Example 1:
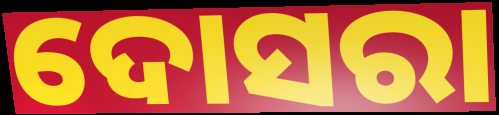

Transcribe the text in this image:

ଦୋସରା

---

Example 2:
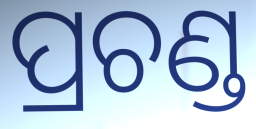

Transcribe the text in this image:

ପ୍ରଚଣ୍ଡ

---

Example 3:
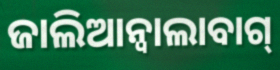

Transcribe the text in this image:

ଜାଲିଆନ୍ଵାଲାବାଗ୍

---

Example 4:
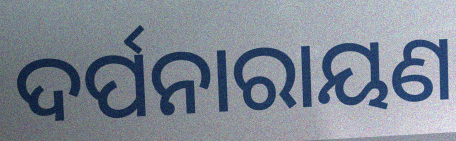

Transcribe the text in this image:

ଦର୍ପନାରାୟଣ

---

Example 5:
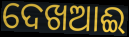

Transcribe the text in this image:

ଦେଖଆଈ